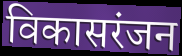
विकासरंजन